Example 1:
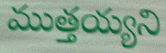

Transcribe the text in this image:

ముత్తయ్యని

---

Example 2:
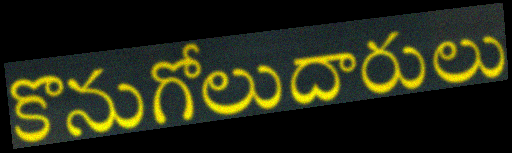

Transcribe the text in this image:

కొనుగోలుదారులు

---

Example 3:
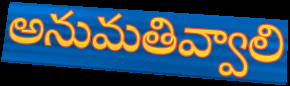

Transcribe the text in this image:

అనుమతివ్వాలి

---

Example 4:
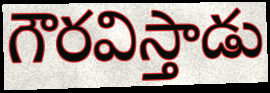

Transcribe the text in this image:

గౌరవిస్తాడు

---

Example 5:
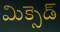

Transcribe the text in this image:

మిక్సెడ్